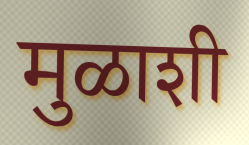
मुळाशी